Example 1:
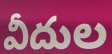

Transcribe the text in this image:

వీదుల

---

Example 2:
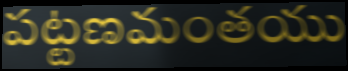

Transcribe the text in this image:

పట్టణమంతయు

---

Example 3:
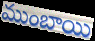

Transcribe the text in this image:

ముంబాయి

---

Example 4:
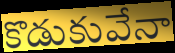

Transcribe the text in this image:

కొడుకువేనా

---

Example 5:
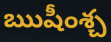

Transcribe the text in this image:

ఋషీంశ్చ